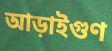
আড়াইগুণ